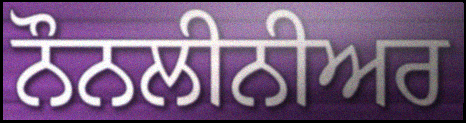
ਨੌਨਲੀਨੀਅਰ